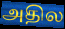
அதில